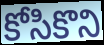
కోసికొని